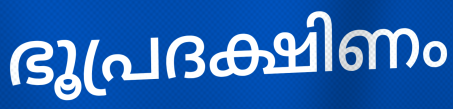
ഭൂപ്രദക്ഷിണം